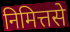
निमित्तसे